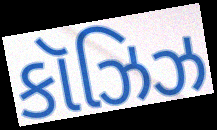
કૉઝિઝ